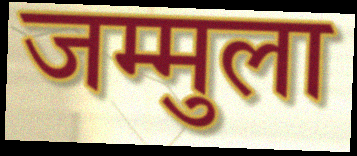
जम्मुला